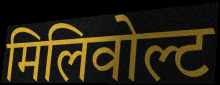
मिलिवोल्ट